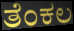
ತೆಂಕಲ